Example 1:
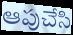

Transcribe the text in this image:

ఆపుచేసి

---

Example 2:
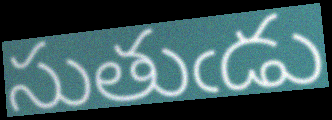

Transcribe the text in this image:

సుతుఁడు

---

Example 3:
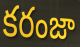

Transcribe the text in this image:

కరంజా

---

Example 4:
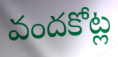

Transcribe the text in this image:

వందకోట్ల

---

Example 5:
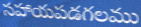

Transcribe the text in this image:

సహాయపడగలము